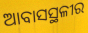
ଆବାସସ୍ଥଳୀର